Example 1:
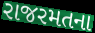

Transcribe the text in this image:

રાજરમતના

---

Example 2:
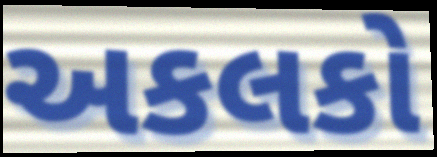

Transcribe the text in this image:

અકલકો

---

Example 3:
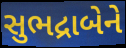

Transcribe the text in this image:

સુભદ્રાબેને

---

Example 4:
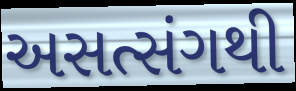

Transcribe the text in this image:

અસત્સંગથી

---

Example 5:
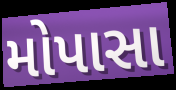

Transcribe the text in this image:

મોપાસા